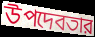
উপদেবতার